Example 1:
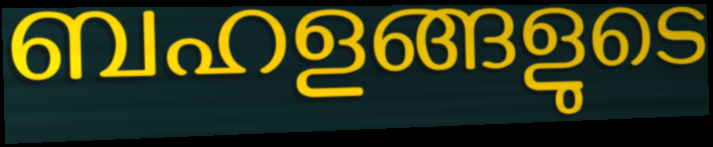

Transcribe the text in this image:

ബഹളങ്ങളുടെ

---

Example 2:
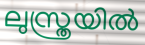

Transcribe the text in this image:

ലുസ്ത്രയിൽ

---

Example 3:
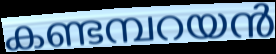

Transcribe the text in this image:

കണ്ടമ്പറയൻ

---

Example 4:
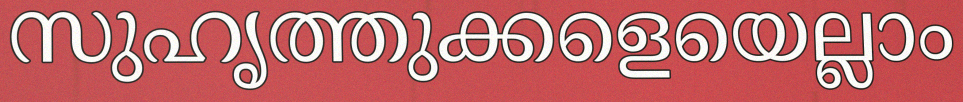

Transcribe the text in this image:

സുഹൃത്തുക്കളെയെല്ലാം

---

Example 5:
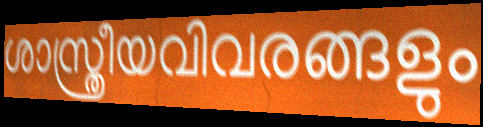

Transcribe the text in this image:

ശാസ്ത്രീയവിവരങ്ങളും